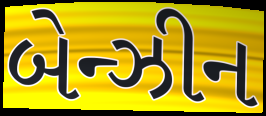
બેન્ઝીન